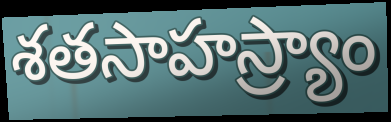
శతసాహస్ర్యాం